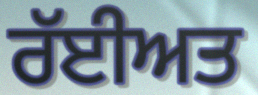
ਰੱਈਅਤ